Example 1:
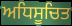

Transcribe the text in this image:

ਅਧਿਸੂਚਿਤ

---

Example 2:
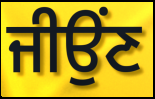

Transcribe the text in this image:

ਜੀਉਂਣ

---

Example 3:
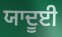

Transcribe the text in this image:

ਯਾਦੂਈ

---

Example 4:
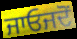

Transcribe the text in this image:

ਜਾਓਜਦੋਂ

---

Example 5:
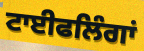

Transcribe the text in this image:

ਟਾਈਫਲਿੰਗਾਂ